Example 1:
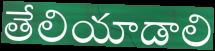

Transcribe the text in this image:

తేలియాడాలి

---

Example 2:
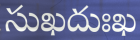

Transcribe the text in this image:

సుఖదుఃఖ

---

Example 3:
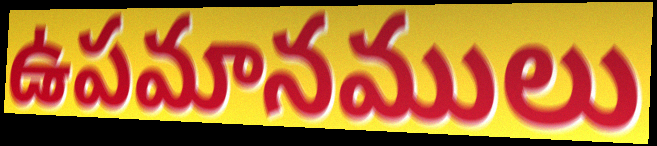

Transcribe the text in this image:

ఉపమానములు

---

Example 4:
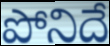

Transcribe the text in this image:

పోనిదే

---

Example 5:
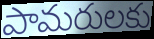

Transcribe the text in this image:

పామరులకు